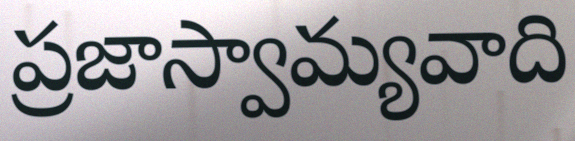
ప్రజాస్వామ్యవాది